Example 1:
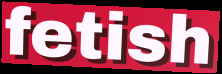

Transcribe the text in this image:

fetish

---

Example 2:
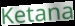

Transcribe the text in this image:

Ketana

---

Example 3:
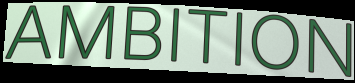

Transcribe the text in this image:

AMBITION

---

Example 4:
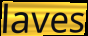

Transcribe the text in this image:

laves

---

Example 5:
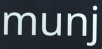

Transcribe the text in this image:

munj